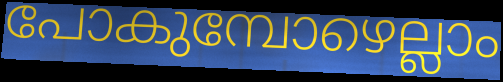
പോകുമ്പോഴെല്ലാം